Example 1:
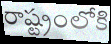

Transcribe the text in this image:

రాష్ట్రంలోకి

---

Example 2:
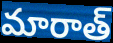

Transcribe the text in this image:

మారాత్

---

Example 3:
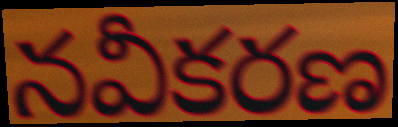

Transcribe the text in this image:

నవీకరణ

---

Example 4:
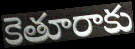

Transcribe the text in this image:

కెతూరాకు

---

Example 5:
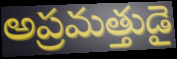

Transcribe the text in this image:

అప్రమత్తుడై